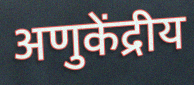
अणुकेंद्रीय